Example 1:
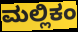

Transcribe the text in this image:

ಮಲ್ಲಿಕಂ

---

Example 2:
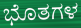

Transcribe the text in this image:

ಭೊತಗಳ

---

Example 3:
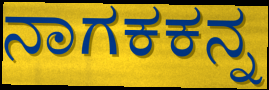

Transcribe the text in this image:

ನಾಗಕಕನ್ನ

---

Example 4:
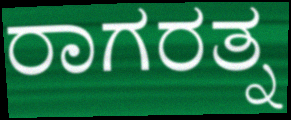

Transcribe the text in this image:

ರಾಗರತ್ನ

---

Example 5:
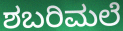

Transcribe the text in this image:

ಶಬರಿಮಲೆ